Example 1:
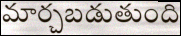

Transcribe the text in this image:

మార్చబడుతుంది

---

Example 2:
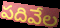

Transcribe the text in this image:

పదివేల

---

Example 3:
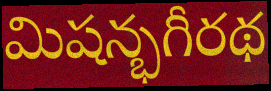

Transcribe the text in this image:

మిషన్భగీరథ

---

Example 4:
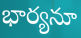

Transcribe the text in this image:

భార్యనూ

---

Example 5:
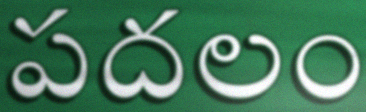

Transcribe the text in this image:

పదలం